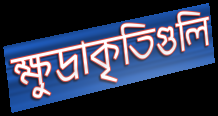
ক্ষুদ্রাকৃতিগুলি